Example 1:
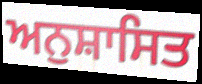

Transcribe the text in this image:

ਅਨੁਸ਼ਾਸਿਤ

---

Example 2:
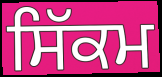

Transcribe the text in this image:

ਸਿੱਕਮ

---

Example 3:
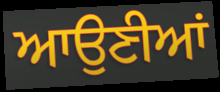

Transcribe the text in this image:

ਆਉਣੀਆਂ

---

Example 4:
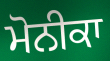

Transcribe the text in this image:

ਮੋਨੀਕਾ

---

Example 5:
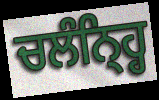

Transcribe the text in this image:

ਚਲੰਨ੍ਹ੍ਹਿ